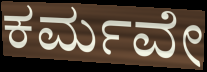
ಕರ್ಮವೇ